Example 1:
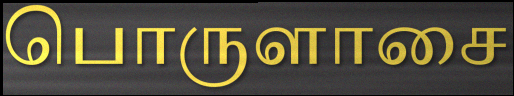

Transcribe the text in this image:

பொருளாசை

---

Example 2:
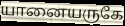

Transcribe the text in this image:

யானையருகே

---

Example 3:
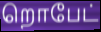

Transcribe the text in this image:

றொபேட்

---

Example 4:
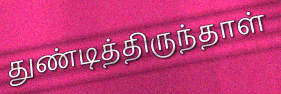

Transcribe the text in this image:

துண்டித்திருந்தாள்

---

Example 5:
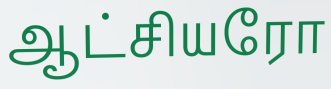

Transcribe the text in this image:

ஆட்சியரோ